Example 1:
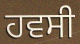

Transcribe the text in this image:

ਹਵਸੀ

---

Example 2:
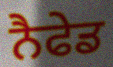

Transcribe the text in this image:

ਨੈਫੇਡ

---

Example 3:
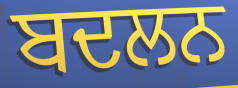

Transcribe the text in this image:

ਬਦਲਨ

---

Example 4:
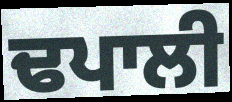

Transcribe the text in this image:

ਢਪਾਲੀ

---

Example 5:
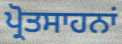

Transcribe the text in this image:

ਪ੍ਰੋਤਸਾਹਨਾਂ